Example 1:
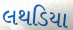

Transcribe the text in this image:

લથડિયા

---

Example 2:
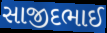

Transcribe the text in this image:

સાજીદભાઈ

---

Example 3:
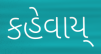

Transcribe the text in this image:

કહેવાય્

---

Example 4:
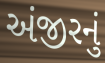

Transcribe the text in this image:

અંજીરનું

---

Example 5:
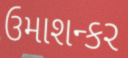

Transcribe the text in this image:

ઉમાશન્કર